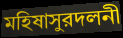
মহিষাসুরদলনী